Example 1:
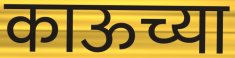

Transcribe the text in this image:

काऊच्या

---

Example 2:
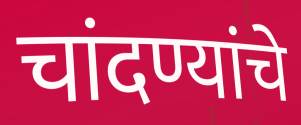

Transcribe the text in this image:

चांदण्यांचे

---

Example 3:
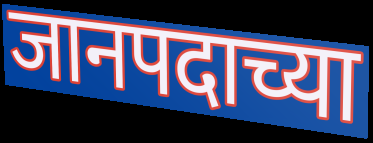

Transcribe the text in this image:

जानपदाच्या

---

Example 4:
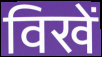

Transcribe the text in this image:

विखें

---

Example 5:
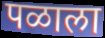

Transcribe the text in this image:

पळाला